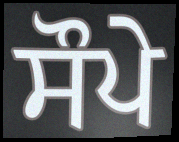
ਸੌਪੇ